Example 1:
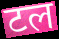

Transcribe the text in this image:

टल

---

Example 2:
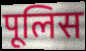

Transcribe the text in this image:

पूलिस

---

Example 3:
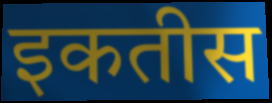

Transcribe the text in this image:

इकतीस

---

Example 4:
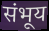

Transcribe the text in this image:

संभूय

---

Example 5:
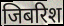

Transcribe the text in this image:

जिबरिश